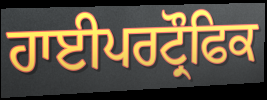
ਹਾਈਪਰਟ੍ਰੌਫਿਕ